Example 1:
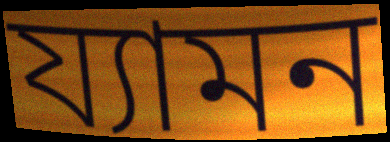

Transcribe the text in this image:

য্যামন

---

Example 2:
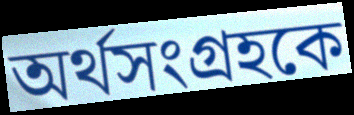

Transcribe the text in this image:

অর্থসংগ্রহকে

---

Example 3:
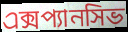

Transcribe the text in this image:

এক্সপ্যানসিভ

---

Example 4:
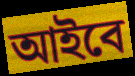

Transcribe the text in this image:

আইবে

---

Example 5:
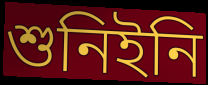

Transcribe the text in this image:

শুনিইনি